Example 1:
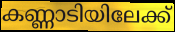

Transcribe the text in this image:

കണ്ണാടിയിലേക്ക്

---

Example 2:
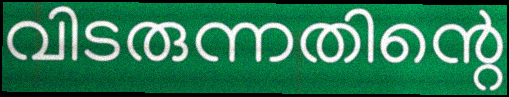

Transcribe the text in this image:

വിടരുന്നതിന്റെ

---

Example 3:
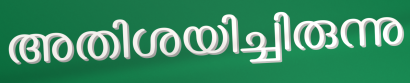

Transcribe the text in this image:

അതിശയിച്ചിരുന്നു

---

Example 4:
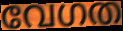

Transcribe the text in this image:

വേഗത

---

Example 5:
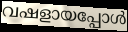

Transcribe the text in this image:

വഷളായപ്പോൾ